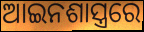
ଆଇନଶାସ୍ତ୍ରରେ